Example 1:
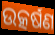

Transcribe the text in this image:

ଉତ୍କର୍ଷଣ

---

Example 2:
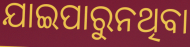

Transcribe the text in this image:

ଯାଇପାରୁନଥିବା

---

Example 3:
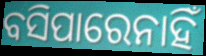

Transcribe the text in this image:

ବସିପାରେନାହିଁ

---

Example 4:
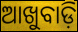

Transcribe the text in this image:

ଆଖୁବାଡ଼ି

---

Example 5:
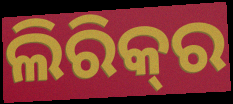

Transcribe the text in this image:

ଲିରିକ୍‍ର